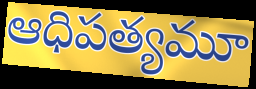
ఆధిపత్యమూ